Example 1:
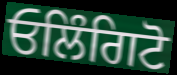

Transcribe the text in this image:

ਓਲਿੰਗਿਟੋ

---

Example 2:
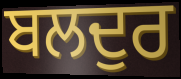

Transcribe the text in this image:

ਬਲਦੁਰ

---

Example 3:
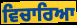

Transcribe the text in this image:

ਵਿਚਾਰਿਆ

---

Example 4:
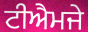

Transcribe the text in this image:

ਟੀਐਮਜੇ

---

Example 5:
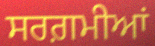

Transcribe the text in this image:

ਸਰਗ਼ਮੀਆਂ